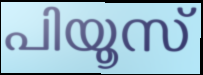
പിയൂസ്